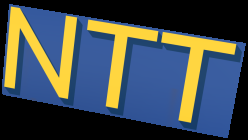
NTT